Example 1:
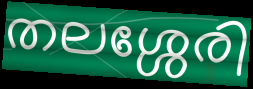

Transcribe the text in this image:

തലശ്ശേരി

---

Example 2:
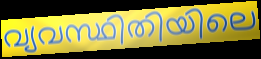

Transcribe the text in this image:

വ്യവസ്ഥിതിയിലെ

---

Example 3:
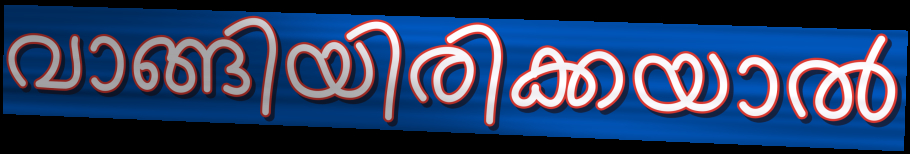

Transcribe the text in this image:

വാങ്ങിയിരിക്കയാൽ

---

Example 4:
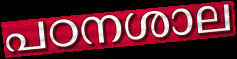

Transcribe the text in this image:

പഠനശാല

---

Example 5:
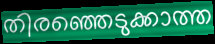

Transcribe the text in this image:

തിരഞ്ഞെടുക്കാത്ത